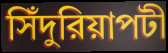
সিঁদুরিয়াপটী